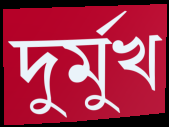
দুর্মুখ